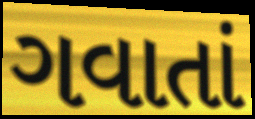
ગવાતાં